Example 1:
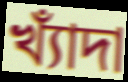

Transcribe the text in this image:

খ্যাঁদা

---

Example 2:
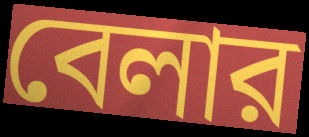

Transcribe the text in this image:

বেলার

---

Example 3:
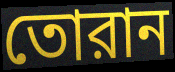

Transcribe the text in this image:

তোরান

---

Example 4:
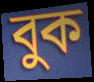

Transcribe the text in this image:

বুক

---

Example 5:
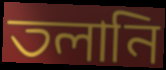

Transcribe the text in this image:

তলানি